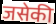
जसेकी